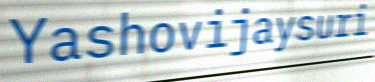
Yashovijaysuri